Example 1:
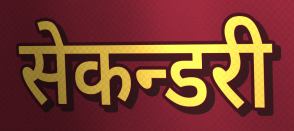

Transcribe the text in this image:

सेकन्डरी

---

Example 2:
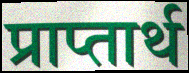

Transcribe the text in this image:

प्राप्तार्थ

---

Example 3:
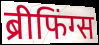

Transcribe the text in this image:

ब्रीफिंग्स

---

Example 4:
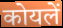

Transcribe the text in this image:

कोयलें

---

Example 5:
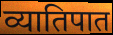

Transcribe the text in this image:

व्यातिपात